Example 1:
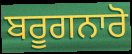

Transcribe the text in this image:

ਬਰੂਗਨਾਰੋ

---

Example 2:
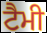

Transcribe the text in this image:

ਟੈਮੀ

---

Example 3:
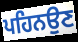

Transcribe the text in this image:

ਪਹਿਨਉਣ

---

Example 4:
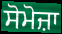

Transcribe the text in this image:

ਸੋਮੋਜ਼ਾ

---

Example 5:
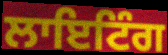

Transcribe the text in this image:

ਲਾਇਟਿੰਗ